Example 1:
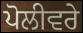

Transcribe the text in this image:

ਪੋਲੀਵਰੇ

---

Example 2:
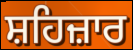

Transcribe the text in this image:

ਸ਼ਹਿਜ਼ਾਰ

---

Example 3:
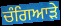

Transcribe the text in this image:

ਚੰਗਿਆੜੇ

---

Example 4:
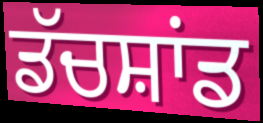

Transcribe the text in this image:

ਡੱਚਸ਼ਾਂਡ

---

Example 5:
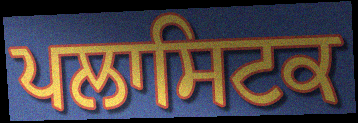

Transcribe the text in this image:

ਪਲਾਸਿਟਕ